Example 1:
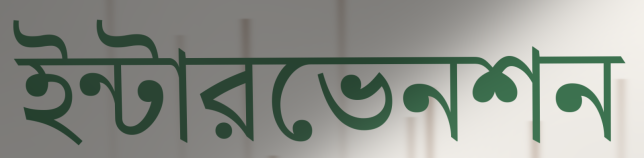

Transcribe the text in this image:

ইন্টারভেনশন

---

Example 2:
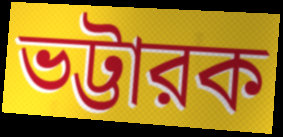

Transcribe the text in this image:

ভট্টারক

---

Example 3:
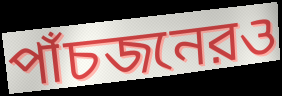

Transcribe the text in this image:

পাঁচজনেরও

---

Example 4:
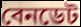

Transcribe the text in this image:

বেনডেট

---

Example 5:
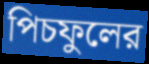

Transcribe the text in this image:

পিচফুলের